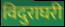
विदुराघरी